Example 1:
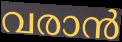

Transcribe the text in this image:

വരാൻ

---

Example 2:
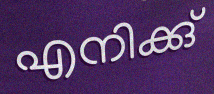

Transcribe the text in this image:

എനിക്കു്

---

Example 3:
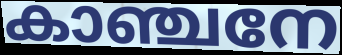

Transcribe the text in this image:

കാഞ്ചനേ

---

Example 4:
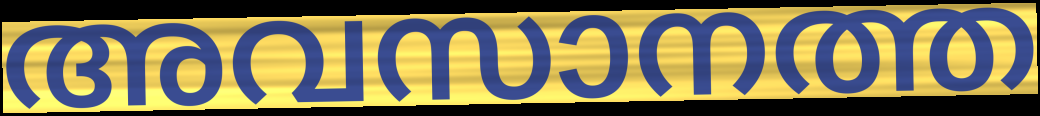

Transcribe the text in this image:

അവസാനത്ത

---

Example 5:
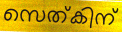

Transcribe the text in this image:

സെത്കിന്